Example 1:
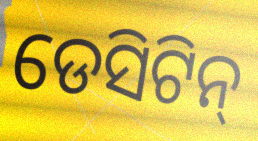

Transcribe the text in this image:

ଡେସିଟିନ୍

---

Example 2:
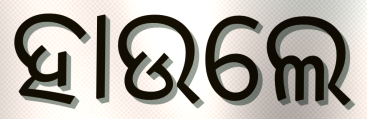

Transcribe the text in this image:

ହାଉଲେ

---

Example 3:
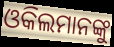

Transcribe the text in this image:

ଓକିଲମାନଙ୍କୁ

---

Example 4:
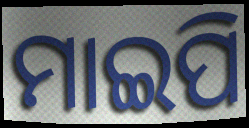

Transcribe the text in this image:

ମାଇପି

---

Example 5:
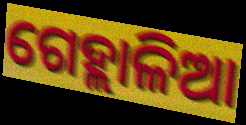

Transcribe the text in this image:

ଗେହ୍ଲାଳିଆ